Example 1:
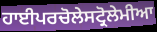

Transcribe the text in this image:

ਹਾਈਪਰਚੋਲੇਸਟ੍ਰੋਲੇਮੀਆ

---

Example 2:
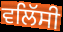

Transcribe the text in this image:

ਵਲਿੱਸੀ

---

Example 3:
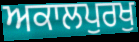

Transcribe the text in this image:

ਅਕਾਲਪੁਰਖੁ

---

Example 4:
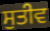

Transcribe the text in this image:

ਸੁਤੀਵ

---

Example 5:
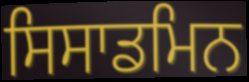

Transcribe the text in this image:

ਸਿਸਾਡਮਿਨ